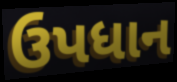
ઉપધાન